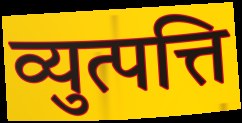
व्युत्पत्ति